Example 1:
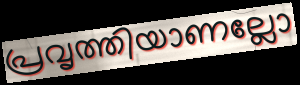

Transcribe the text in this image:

പ്രവൃത്തിയാണല്ലോ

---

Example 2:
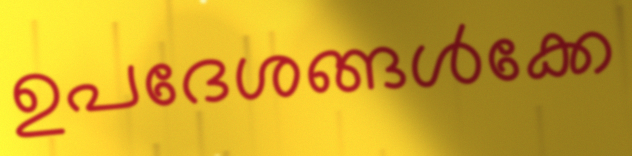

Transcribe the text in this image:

ഉപദേശങ്ങൾക്കേ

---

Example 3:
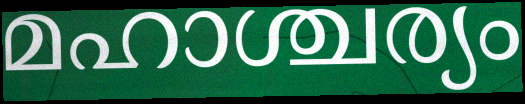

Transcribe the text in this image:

മഹാശ്ചര്യം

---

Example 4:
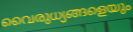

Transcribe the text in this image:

വൈരുധ്യങ്ങളെയും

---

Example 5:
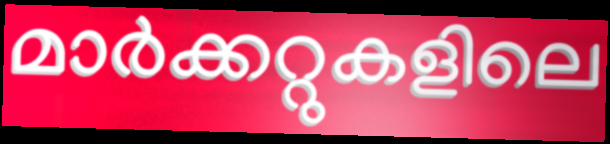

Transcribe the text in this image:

മാർക്കറ്റുകളിലെ